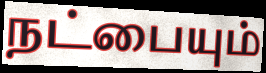
நட்பையும்